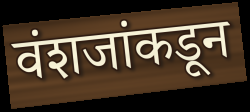
वंशजांकडून